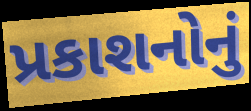
પ્રકાશનોનું